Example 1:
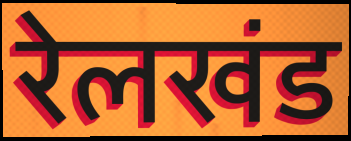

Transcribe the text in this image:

रेलखंड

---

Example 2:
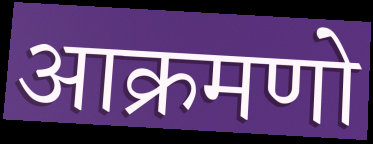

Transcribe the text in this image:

आक्रमणो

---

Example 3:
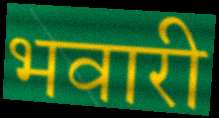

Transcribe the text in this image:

भवारी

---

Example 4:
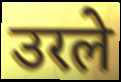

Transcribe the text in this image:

उरले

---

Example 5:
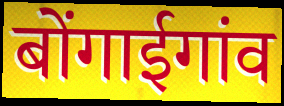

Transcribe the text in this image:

बोंगाईगांव